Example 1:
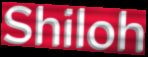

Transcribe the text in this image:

Shiloh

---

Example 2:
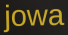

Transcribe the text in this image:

jowa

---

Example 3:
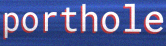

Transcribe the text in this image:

porthole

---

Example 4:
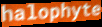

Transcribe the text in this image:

halophyte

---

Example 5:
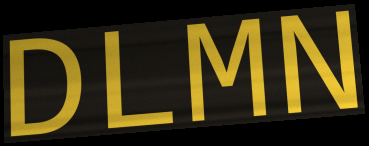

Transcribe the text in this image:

DLMN